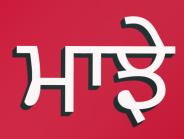
ਮਾਝੇ